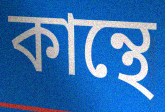
কান্থে